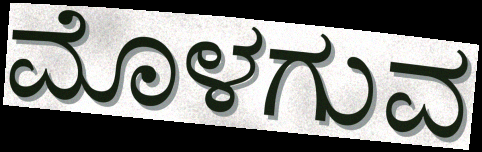
ಮೊಳಗುವ